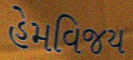
હેમવિજય